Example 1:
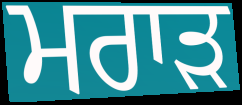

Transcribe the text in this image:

ਮਰਾੜ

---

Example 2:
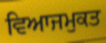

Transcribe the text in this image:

ਵਿਆਜਮੁਕਤ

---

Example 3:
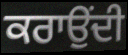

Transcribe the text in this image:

ਕਰਾਉਂਦੀ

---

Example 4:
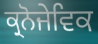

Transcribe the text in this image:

ਕ੍ਰਨੋਜੇਵਿਕ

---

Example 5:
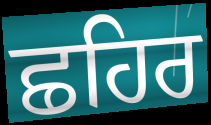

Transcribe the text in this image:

ਛਹਿਰ